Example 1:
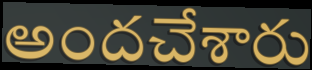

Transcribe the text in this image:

అందచేశారు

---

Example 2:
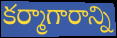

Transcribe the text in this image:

కర్మాగారాన్ని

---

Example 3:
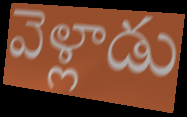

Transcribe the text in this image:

వెళ్లాడు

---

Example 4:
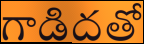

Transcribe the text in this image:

గాడిదతో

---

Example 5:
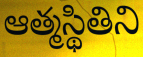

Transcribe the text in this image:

ఆత్మస్థితిని